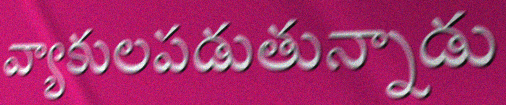
వ్యాకులపడుతున్నాడు